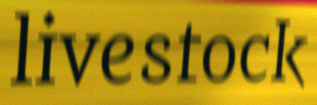
livestock